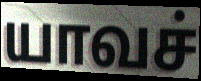
யாவச்